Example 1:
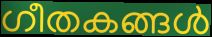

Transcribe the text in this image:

ഗീതകങ്ങൾ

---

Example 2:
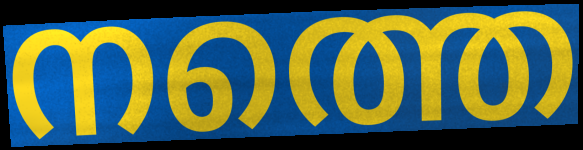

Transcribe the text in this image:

നത്തെ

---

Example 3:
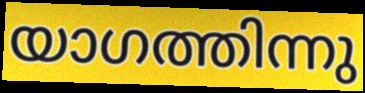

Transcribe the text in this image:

യാഗത്തിന്നു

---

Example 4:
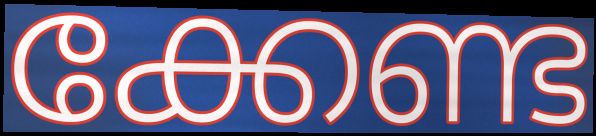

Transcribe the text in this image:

ക്കേണ്ട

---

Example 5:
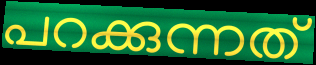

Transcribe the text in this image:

പറക്കുന്നത്